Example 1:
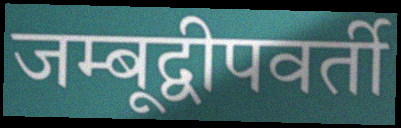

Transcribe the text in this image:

जम्बूद्वीपवर्ती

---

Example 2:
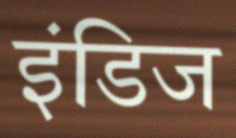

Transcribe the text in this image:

इंडिज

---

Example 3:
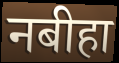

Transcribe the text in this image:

नबीहा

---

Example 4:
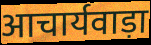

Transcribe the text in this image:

आचार्यवाड़ा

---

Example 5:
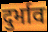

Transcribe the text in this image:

दुर्भाव